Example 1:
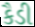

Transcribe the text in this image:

કૈડી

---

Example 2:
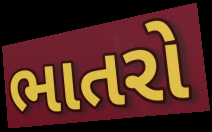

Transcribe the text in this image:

ભાતરો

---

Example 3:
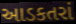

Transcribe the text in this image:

આડકતરાં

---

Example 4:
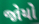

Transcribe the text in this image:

જોયો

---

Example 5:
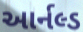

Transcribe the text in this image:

આર્નલ્ડ